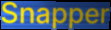
Snapper